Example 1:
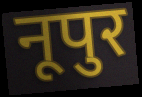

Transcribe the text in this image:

नूपुर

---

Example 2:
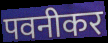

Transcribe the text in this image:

पवनीकर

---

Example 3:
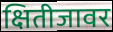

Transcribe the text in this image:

क्षितीजावर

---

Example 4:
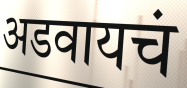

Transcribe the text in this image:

अडवायचं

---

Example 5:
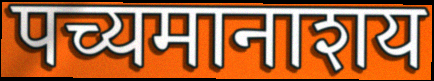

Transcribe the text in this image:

पच्यमानाशय